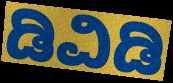
ಡಿವಿಡಿ